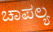
ಚಾಪಲ್ಯ